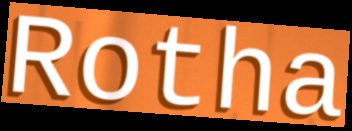
Rotha